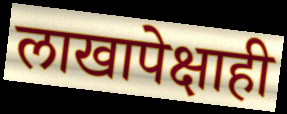
लाखापेक्षाही